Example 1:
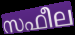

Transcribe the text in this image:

സഫീല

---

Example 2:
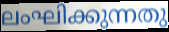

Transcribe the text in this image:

ലംഘിക്കുന്നതു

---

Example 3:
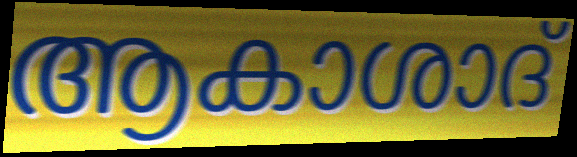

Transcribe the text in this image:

ആകാശാദ്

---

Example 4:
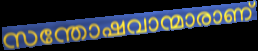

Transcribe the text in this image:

സന്തോഷവാന്മാരാണ്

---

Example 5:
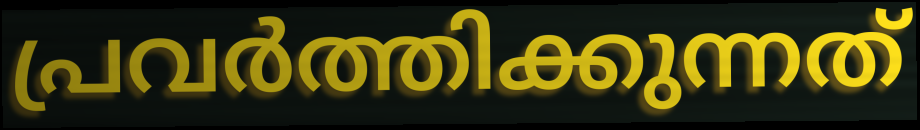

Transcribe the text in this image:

പ്രവർത്തിക്കുന്നത്